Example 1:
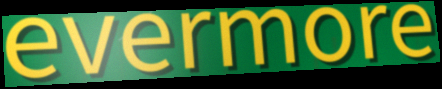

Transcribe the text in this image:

evermore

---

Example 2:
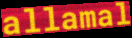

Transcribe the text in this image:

allamal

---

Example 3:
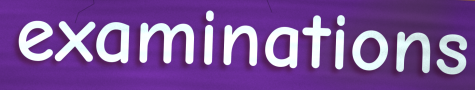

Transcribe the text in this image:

examinations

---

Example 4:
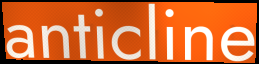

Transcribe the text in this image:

anticline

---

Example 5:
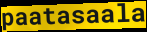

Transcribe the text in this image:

paatasaala